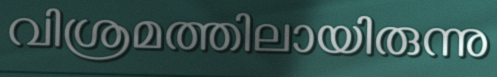
വിശ്രമത്തിലായിരുന്നു